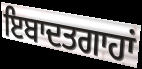
ਇਬਾਦਤਗਾਹਾਂ